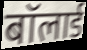
बॉलार्ड